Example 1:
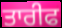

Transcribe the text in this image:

ਤਾਰੀਫ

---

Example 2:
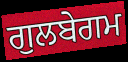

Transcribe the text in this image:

ਗੁਲਬੇਗਮ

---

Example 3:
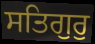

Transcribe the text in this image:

ਸਤਿਗੁਰੁ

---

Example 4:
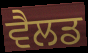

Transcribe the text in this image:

ਵੈਲਡ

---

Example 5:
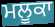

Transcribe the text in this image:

ਮਲੂਕਾ